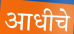
आधीचे